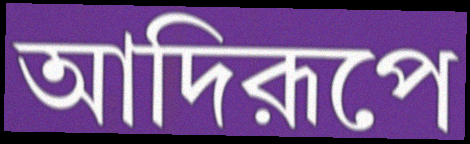
আদিরূপে